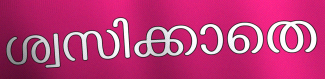
ശ്വസിക്കാതെ